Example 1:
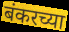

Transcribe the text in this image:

बंकरच्या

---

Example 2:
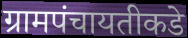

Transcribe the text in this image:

ग्रामपंचायतीकडे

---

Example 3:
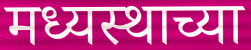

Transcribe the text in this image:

मध्यस्थाच्या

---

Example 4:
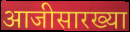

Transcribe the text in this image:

आजीसारख्या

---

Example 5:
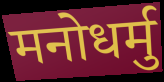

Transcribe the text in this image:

मनोधर्मु